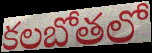
కలబోతలో